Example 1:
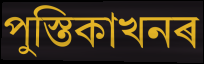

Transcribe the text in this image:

পুস্তিকাখনৰ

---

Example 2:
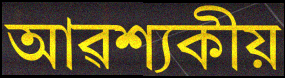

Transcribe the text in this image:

আৱশ্য়কীয়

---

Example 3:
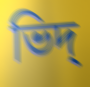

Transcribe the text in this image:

ভিদ্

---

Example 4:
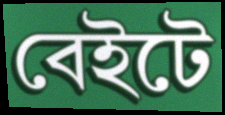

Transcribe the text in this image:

বেইটে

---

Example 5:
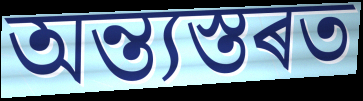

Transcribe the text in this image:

অন্ত্যস্তৰত